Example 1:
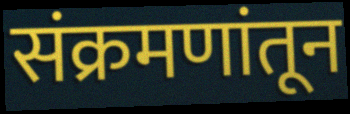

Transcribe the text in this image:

संक्रमणांतून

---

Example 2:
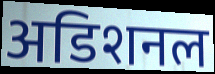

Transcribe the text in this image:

अडिशनल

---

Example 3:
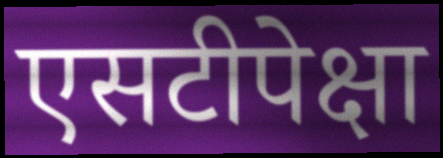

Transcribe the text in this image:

एसटीपेक्षा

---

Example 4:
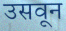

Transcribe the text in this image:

उसवून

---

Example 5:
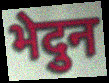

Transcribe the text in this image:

भेदुन